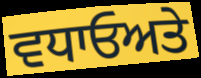
ਵਧਾਓਅਤੇ